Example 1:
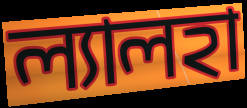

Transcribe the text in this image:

ল্যালহা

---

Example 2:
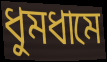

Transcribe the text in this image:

ধুমধামে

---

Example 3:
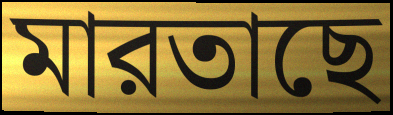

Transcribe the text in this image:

মারতাছে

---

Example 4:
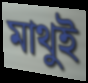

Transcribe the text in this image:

মাথুই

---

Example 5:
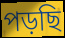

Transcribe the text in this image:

পড়ছি